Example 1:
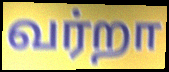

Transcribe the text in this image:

வர்றா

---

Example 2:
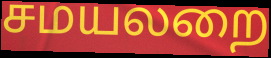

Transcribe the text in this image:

சமயலறை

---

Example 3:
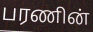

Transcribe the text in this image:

பரணின்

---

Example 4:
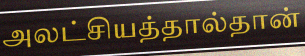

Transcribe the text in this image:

அலட்சியத்தால்தான்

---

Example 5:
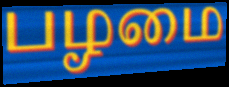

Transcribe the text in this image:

பழமை